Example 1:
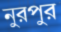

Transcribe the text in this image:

নুরপুর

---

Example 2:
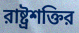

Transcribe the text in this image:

রাষ্ট্রশক্তির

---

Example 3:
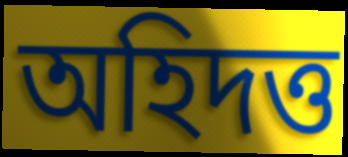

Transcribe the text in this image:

অহিদত্ত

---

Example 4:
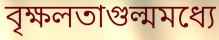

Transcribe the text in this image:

বৃক্ষলতাগুল্মমধ্যে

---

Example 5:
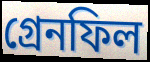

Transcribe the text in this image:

গ্রেনফিল